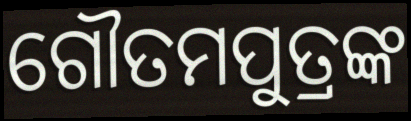
ଗୌତମପୁତ୍ରଙ୍କ